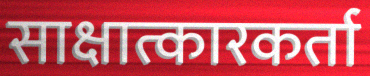
साक्षात्कारकर्ता